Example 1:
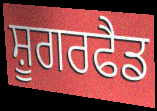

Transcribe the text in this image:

ਸ਼ੂਗਰਫੈਡ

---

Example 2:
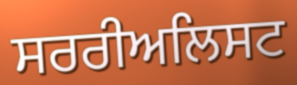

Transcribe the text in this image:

ਸਰਰੀਅਲਿਸਟ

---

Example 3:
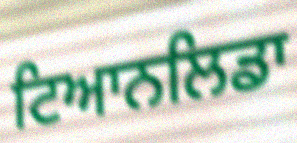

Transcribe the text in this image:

ਟਿਆਨਲਿਡਾ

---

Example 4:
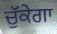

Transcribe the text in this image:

ਚੁੱਕੇਗਾ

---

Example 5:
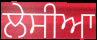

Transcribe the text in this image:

ਲੇਸੀਆ